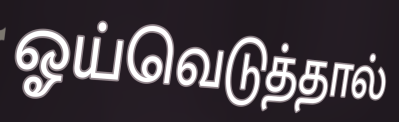
ஓய்வெடுத்தால்